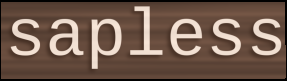
sapless